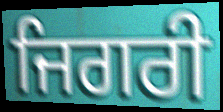
ਜਿਗਰੀ